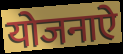
योजनाऐ